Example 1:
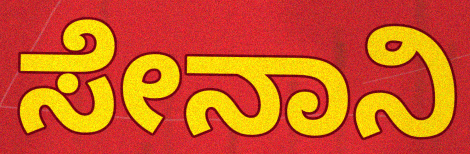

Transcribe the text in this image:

ಸೇನಾನಿ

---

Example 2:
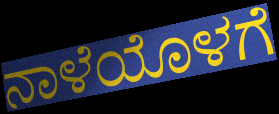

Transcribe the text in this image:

ನಾಳೆಯೊಳಗೆ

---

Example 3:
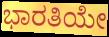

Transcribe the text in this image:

ಭಾರತಿಯೇ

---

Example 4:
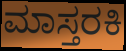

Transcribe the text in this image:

ಮಾಸ್ತರಕಿ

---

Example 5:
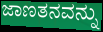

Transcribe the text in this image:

ಜಾಣತನವನ್ನು